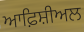
ਆਫ਼ਿਸ਼ੀਅਲ